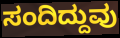
ಸಂದಿದ್ದುವು